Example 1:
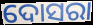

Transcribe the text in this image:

ଦୋସରା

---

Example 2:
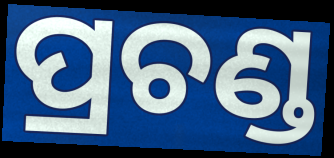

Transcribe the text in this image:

ପ୍ରଚଣ୍ଡ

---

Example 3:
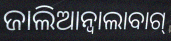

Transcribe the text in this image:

ଜାଲିଆନ୍ଵାଲାବାଗ୍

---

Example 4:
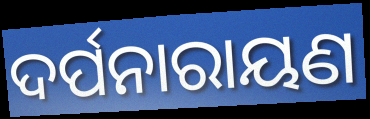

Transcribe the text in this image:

ଦର୍ପନାରାୟଣ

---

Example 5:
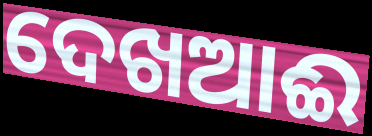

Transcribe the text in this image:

ଦେଖଆଈ